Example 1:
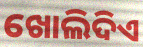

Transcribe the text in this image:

ଖୋଲିଦିଏ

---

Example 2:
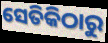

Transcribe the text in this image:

ସେତିକିଠାରୁ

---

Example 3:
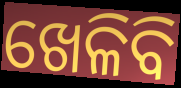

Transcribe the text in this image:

ଖେଳିବି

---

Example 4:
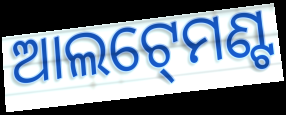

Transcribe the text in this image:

ଆଲଟ୍‍ମେଣ୍ଟ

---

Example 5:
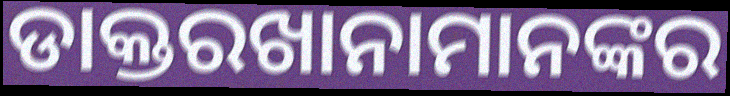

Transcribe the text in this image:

ଡାକ୍ତରଖାନାମାନଙ୍କର